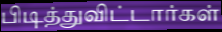
பிடித்துவிட்டார்கள்